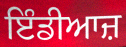
ਇੰਡੀਆਜ਼